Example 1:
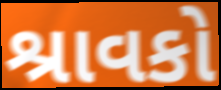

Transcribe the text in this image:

શ્રાવકો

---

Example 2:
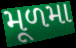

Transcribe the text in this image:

મૂળમા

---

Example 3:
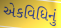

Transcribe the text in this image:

એકવિધિનું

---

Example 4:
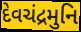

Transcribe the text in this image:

દેવચંદ્રમુનિ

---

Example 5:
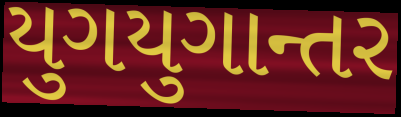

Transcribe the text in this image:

યુગયુગાન્તર